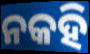
ନକହି